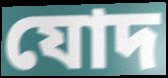
যোদ